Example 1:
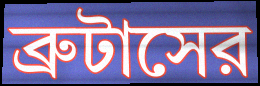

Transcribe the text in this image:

ব্রুটাসের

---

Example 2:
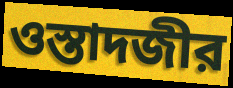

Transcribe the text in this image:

ওস্তাদজীর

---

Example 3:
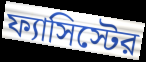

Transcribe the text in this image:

ফ্যাসিস্টের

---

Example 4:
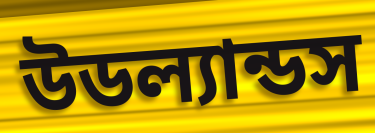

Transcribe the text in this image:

উডল্যান্ডস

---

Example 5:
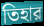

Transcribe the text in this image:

তিহার